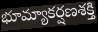
భూమ్యాకర్షణశక్తి